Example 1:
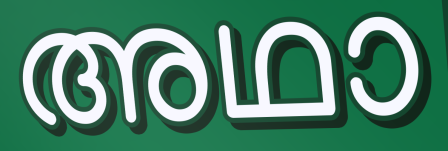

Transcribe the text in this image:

അഥാ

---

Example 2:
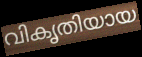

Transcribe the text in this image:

വികൃതിയായ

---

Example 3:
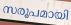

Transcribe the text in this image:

സരൂപമായി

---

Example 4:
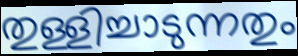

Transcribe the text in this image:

തുള്ളിച്ചാടുന്നതും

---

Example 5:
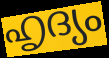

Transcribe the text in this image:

ഹൃദ്യം